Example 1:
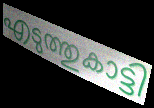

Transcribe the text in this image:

എടുത്തുകാട്ടി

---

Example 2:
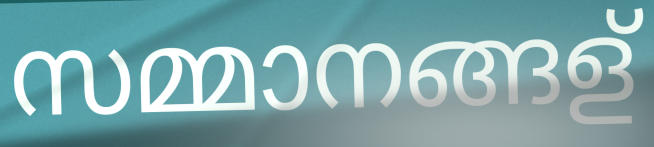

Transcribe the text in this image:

സമ്മാനങ്ങള്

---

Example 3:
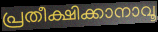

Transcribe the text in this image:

പ്രതീക്ഷിക്കാനാവൂ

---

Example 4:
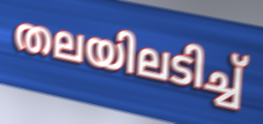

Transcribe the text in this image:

തലയിലടിച്ച്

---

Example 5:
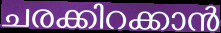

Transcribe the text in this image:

ചരക്കിറക്കാൻ